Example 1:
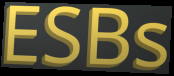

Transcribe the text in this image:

ESBs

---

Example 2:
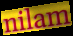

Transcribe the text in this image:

nilam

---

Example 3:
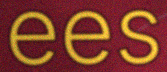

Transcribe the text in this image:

ees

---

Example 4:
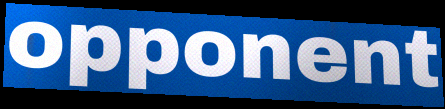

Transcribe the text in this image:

opponent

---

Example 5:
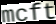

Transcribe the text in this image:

mcft